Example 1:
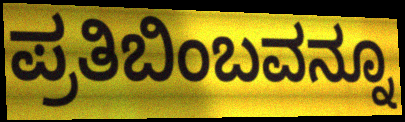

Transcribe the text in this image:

ಪ್ರತಿಬಿಂಬವನ್ನೂ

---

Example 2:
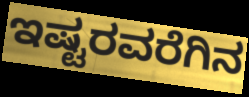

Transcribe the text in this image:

ಇಷ್ಟರವರೆಗಿನ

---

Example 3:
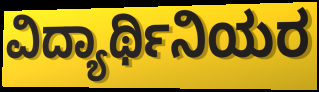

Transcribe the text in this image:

ವಿದ್ಯಾರ್ಥಿನಿಯರ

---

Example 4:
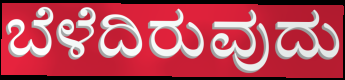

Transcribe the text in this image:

ಬೆಳೆದಿರುವುದು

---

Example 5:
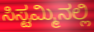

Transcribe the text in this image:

ಸಿಸ್ಟಮ್ಮಿನಲ್ಲಿ